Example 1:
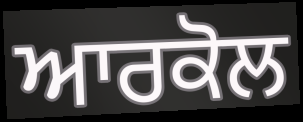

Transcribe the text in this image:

ਆਰਕੋਲ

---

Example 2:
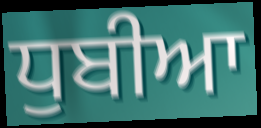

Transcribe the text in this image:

ਧੁਬੀਆ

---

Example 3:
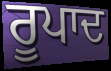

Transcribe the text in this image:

ਰੂਪਾਦ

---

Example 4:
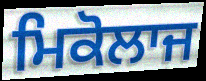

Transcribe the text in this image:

ਮਿਕੋਲਾਜ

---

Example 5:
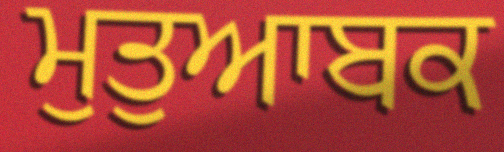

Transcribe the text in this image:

ਮੁਤੁਆਬਕ